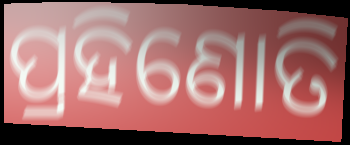
ପ୍ରହିଣୋତି